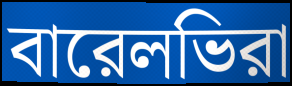
বারেলভিরা